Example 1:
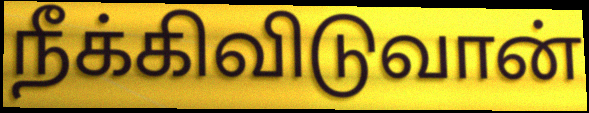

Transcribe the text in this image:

நீக்கிவிடுவான்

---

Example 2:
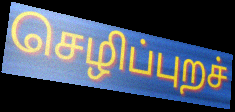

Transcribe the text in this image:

செழிப்புறச்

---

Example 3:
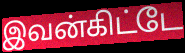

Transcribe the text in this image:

இவன்கிட்டே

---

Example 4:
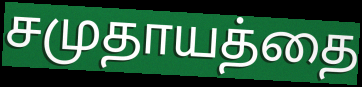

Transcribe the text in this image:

சமுதாயத்தை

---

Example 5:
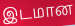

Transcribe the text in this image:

இடமான